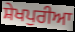
ਸ਼ੇਖਪੁਰੀਆ